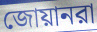
জোয়ানরা